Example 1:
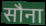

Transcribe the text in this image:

सौना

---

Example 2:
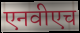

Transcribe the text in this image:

एनवीएच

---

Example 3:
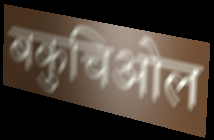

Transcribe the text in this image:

बकुचिओल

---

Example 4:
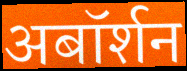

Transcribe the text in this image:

अबॉर्शन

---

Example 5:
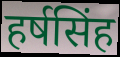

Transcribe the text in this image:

हर्षसिंह